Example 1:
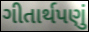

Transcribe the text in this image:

ગીતાર્થપણું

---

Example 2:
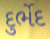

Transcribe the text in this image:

દુર્ભેદ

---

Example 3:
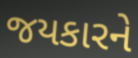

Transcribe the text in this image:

જયકારને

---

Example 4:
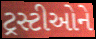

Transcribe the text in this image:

ટ્રસ્ટીઓને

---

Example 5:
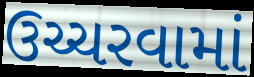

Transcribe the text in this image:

ઉચ્ચરવામાં